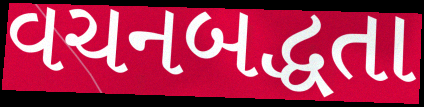
વચનબદ્ધતા